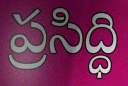
ప్రసిద్ధి